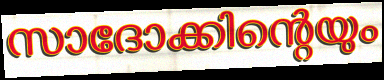
സാദോക്കിന്റെയും